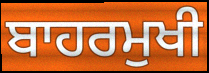
ਬਾਹਰਮੁਖੀ